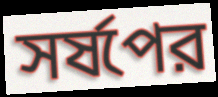
সর্ষপের